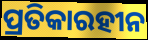
ପ୍ରତିକାରହୀନ